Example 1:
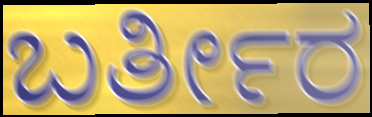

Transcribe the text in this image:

ಬರ್ತೀರ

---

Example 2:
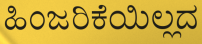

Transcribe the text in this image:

ಹಿಂಜರಿಕೆಯಿಲ್ಲದ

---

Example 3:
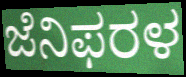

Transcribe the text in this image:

ಜೆನಿಫರಳ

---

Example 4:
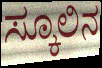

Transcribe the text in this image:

ಸ್ಕೂಲಿನ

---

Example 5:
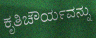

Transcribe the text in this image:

ಕೃತಿಚೌರ್ಯವನ್ನು